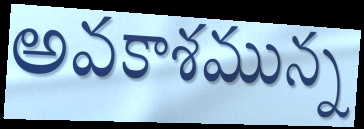
అవకాశమున్న